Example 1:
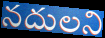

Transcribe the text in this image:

నదులని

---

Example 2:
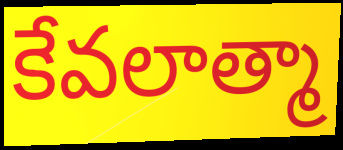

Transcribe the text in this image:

కేవలాత్మా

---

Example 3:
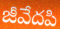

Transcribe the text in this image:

జీవేదపి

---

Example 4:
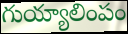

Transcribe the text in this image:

గుయ్యాలింపం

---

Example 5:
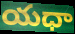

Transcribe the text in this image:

యధా